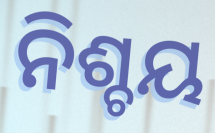
ନିଶ୍ଚୟ